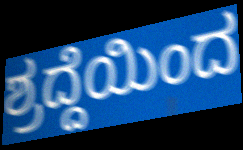
ಶ್ರದ್ದೆಯಿಂದ